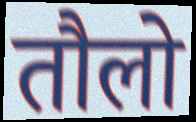
तौलो